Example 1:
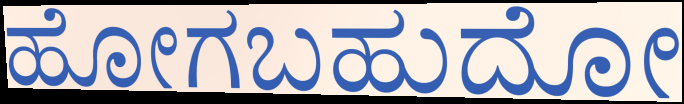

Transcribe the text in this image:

ಹೋಗಬಹುದೋ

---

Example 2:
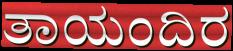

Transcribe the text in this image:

ತಾಯಂದಿರ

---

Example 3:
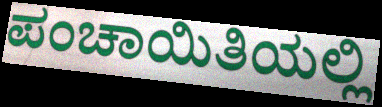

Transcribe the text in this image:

ಪಂಚಾಯಿತಿಯಲ್ಲಿ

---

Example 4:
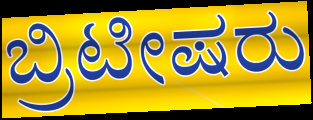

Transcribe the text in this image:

ಬ್ರಿಟೀಷರು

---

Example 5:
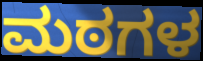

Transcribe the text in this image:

ಮಠಗಳ